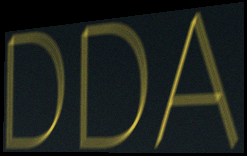
DDA